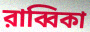
রাব্বিকা